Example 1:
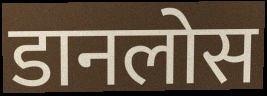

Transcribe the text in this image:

डानलोस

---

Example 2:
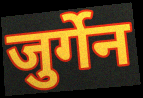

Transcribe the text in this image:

जुर्गेन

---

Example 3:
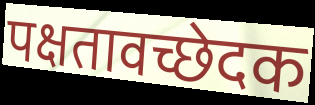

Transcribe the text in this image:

पक्षतावच्छेदक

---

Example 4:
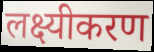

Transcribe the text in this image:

लक्ष्यीकरण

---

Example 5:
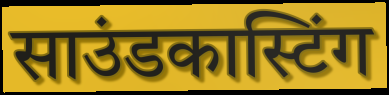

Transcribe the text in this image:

साउंडकास्टिंग